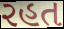
રહત